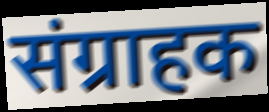
संग्राहक